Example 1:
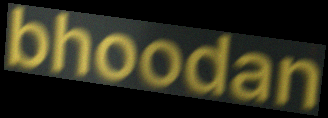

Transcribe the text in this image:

bhoodan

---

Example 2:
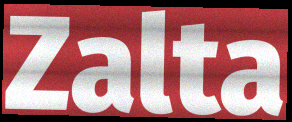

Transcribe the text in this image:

Zalta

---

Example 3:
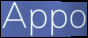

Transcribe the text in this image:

Appo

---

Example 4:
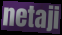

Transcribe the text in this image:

netaji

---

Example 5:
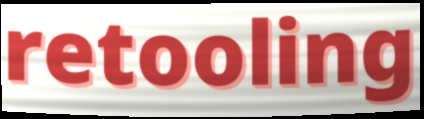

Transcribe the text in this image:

retooling